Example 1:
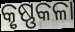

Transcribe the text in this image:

କୃଷ୍ଣକଳା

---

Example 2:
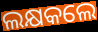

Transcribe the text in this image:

ଲକ୍ଷକଲେ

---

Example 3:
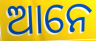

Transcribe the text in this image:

ଆନେ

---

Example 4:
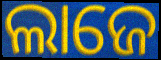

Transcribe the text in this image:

ଲାଜେ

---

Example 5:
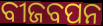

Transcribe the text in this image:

ବୀଜବପନ